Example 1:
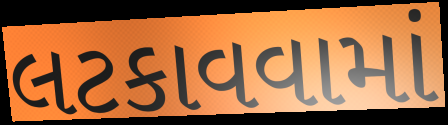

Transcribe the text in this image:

લટકાવવામાં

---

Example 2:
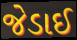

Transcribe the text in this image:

જેડાઈ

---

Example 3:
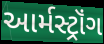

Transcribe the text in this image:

આર્મસ્ટ્રૉંગ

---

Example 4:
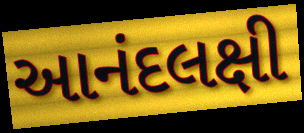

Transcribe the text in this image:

આનંદલક્ષી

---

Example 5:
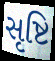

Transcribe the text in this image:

સૃષ્ટિ